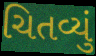
ચિતવ્યું